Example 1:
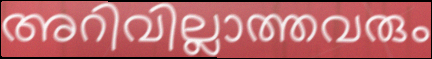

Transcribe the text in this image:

അറിവില്ലാത്തവരും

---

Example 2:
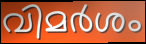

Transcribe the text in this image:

വിമർശം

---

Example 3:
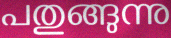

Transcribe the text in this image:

പതുങ്ങുന്നു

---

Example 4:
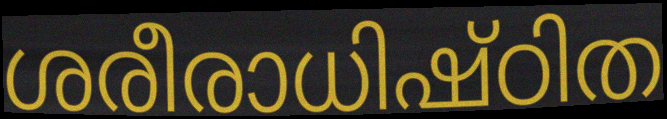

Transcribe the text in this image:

ശരീരാധിഷ്ഠിത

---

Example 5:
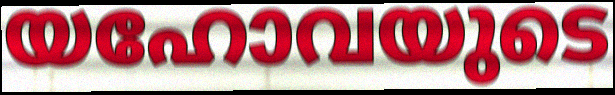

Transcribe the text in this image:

യഹോവയുടെ